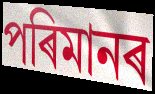
পৰিমানৰ